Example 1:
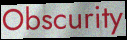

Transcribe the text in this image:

Obscurity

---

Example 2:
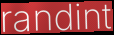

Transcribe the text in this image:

randint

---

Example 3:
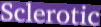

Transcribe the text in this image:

Sclerotic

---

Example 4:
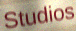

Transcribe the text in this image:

Studios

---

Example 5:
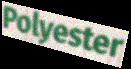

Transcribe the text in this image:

Polyester